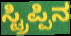
ಸ್ಟ್ರಿಪ್ಪಿನ